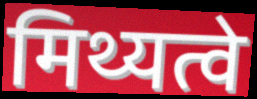
मिथ्यत्वे